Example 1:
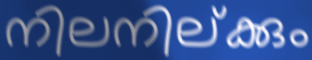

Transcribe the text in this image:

നിലനില്ക്കും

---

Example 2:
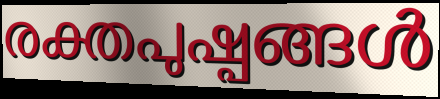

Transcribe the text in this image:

രക്തപുഷ്പങ്ങൾ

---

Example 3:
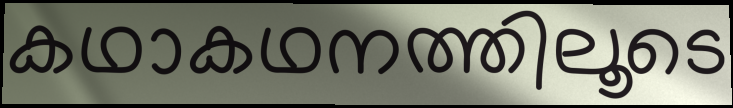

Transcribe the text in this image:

കഥാകഥനത്തിലൂടെ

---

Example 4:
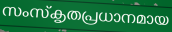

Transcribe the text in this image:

സംസ്‌കൃതപ്രധാനമായ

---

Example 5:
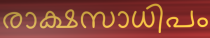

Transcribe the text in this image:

രാക്ഷസാധിപം